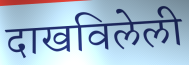
दाखविलेली